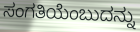
ಸಂಗತಿಯೆಂಬುದನ್ನು